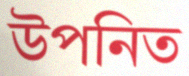
উপনিত